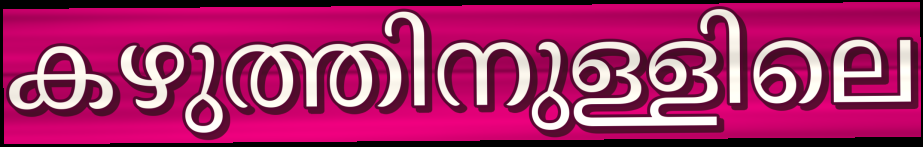
കഴുത്തിനുള്ളിലെ